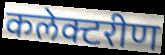
कलेक्टरीण